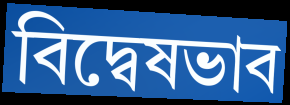
বিদ্বেষভাব